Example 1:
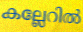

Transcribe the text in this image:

കല്ലേറിൽ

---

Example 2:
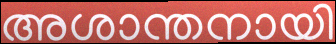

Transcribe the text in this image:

അശാന്തനായി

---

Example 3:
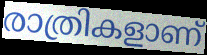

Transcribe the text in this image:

രാത്രികളാണ്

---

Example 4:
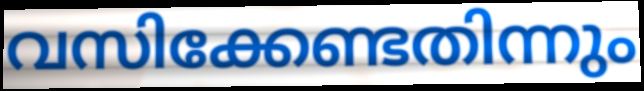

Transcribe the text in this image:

വസിക്കേണ്ടതിന്നും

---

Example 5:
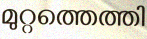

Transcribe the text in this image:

മുറ്റത്തെത്തി